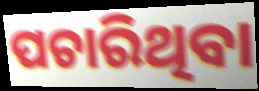
ପଚାରିଥିବା